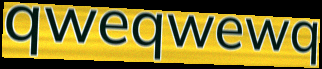
qweqwewq